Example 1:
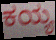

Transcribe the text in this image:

ಕಯ್ಯ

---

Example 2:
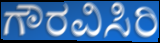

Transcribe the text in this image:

ಗೌರವಿಸಿರಿ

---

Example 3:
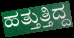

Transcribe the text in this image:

ಹತ್ತುತ್ತಿದ್ದ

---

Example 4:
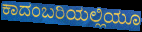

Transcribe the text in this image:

ಕಾದಂಬರಿಯಲ್ಲಿಯೂ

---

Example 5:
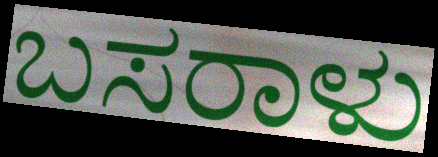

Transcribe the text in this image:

ಬಸರಾಳು